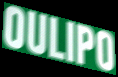
OULIPO